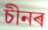
চীনৰ